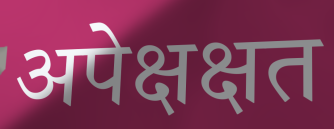
अपेक्षक्षत